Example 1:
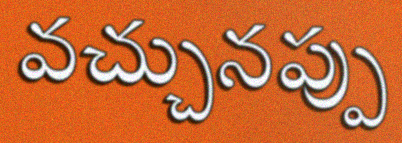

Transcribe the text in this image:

వచ్చునప్పు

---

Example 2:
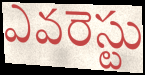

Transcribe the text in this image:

ఎవరెస్టు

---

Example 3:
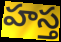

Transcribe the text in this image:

హస్త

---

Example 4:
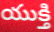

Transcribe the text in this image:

యుక్తి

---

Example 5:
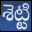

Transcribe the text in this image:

శెట్టి